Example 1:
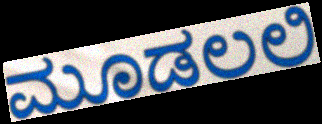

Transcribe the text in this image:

ಮೂಡಲಲಿ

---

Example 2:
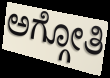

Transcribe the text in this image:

ಅಗ್ಗೋತಿ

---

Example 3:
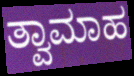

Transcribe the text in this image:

ತ್ವಾಮಾಹ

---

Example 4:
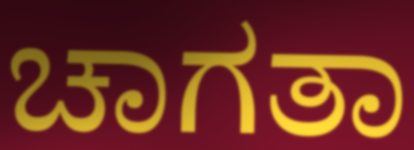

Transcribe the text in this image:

ಚಾಗತಾ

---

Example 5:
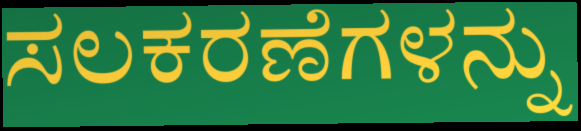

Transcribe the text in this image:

ಸಲಕರಣೆಗಳನ್ನು